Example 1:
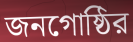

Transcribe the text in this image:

জনগোষ্ঠির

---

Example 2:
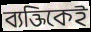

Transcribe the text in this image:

ব্যক্তিকেই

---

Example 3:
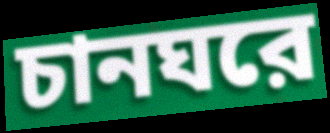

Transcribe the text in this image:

চানঘরে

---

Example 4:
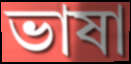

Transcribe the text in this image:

ভাষা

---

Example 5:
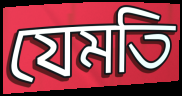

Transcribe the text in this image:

যেমতি